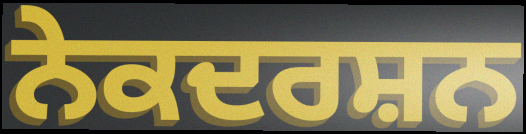
ਨੇਕਦਰਸ਼ਨ